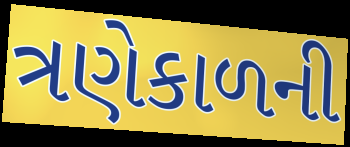
ત્રણેકાળની